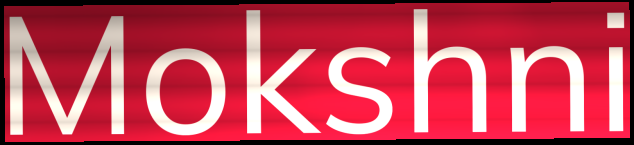
Mokshni